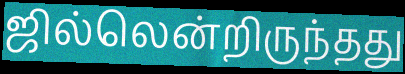
ஜில்லென்றிருந்தது